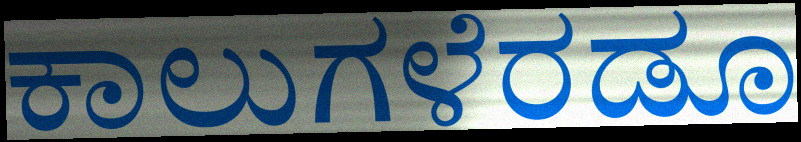
ಕಾಲುಗಳೆರಡೂ